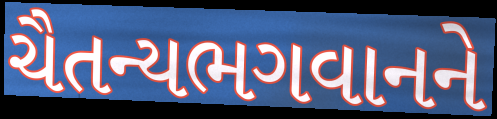
ચૈતન્યભગવાનને